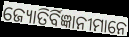
ଜ୍ୟୋତିର୍ବିଜ୍ଞାନୀମାନେ